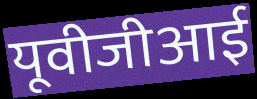
यूवीजीआई